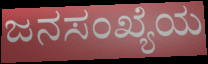
ಜನಸಂಖ್ಯೆಯ